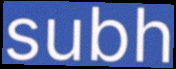
subh